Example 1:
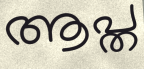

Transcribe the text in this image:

ആപ്ത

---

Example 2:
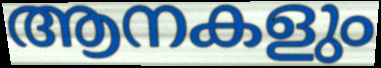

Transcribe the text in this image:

ആനകളും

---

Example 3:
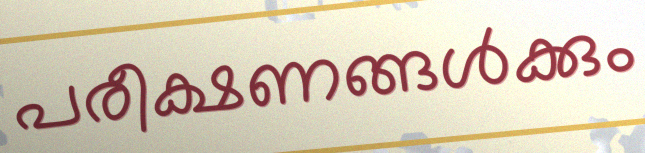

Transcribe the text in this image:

പരീക്ഷണങ്ങൾക്കും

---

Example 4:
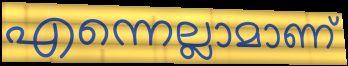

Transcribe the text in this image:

എന്നെല്ലാമാണ്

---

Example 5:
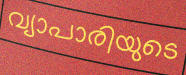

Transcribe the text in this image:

വ്യാപാരിയുടെ